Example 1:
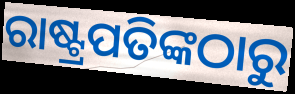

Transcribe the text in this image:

ରାଷ୍ଟ୍ରପତିଙ୍କଠାରୁ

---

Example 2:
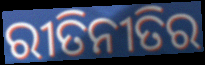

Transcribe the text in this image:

ରୀତିନୀତିର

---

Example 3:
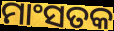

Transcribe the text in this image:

ମାଂସତକ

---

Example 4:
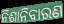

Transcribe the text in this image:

ନିଶାନିବାରଣ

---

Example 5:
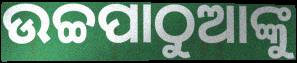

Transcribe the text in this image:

ଉଚ୍ଚପାଠୁଆଙ୍କୁ